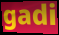
gadi